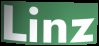
Linz